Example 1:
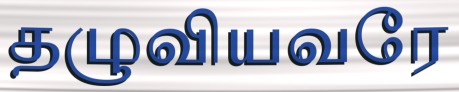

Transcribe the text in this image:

தழுவியவரே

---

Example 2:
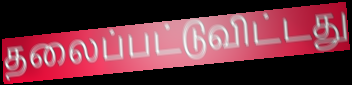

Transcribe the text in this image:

தலைப்பட்டுவிட்டது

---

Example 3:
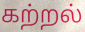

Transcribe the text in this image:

கற்றல்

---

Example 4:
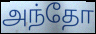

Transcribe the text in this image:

அந்தோ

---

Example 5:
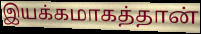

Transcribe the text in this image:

இயக்கமாகத்தான்